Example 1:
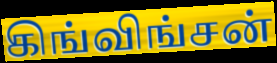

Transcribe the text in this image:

கிங்விங்சன்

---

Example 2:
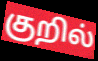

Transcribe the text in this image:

குறில்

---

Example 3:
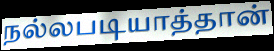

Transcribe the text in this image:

நல்லபடியாத்தான்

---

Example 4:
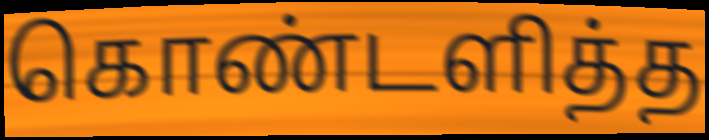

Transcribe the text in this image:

கொண்டளித்த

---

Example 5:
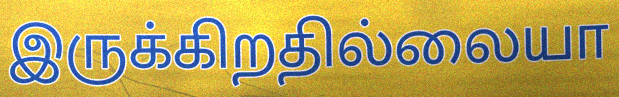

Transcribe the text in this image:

இருக்கிறதில்லையா